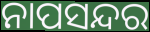
ନାପସନ୍ଦର